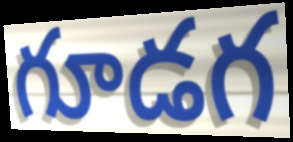
గూడగ